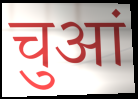
चुआं